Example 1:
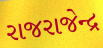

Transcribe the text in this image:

રાજરાજેન્દ્ર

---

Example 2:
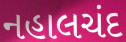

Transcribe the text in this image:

નહાલચંદ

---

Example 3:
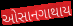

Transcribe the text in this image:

ઓસાનગાથાય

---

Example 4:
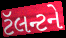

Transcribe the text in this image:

ટૅલન્ટને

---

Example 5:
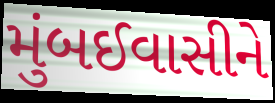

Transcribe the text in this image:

મુંબઈવાસીને